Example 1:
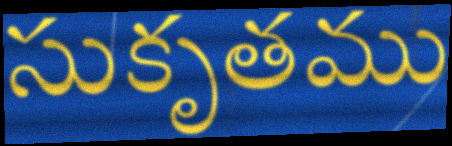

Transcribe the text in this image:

సుకృతము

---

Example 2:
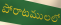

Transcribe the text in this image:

పోరాటములలో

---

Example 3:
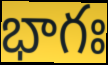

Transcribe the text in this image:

భాగః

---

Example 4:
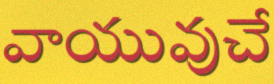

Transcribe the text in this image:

వాయువుచే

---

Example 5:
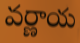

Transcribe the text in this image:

వర్ణాయ